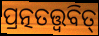
ପ୍ରତ୍ନତତ୍ତ୍ଵବିତ୍